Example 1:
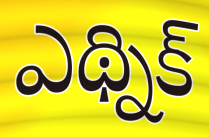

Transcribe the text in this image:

ఎథ్నిక్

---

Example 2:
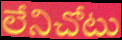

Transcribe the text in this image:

లేనిచోటు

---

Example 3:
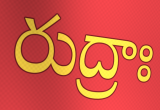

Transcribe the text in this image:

రుద్రాః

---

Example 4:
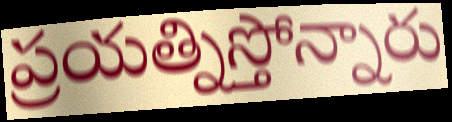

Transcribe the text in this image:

ప్రయత్నిస్తోన్నారు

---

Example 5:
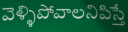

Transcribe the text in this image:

వెళ్ళిపోవాలనిపిస్తే